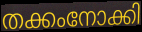
തക്കംനോക്കി